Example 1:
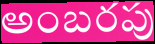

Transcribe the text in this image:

అంబరపు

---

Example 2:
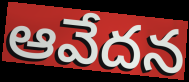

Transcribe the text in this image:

ఆవేదన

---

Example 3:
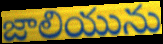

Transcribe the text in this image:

జాలియును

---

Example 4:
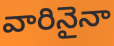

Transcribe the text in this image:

వారినైనా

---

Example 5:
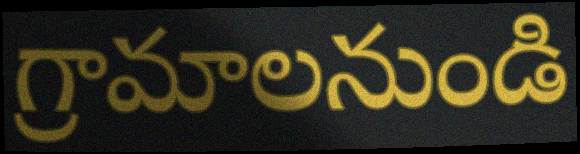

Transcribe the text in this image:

గ్రామాలనుండి